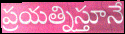
ప్రయత్నిస్తూనే